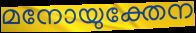
മനോയുക്തേന